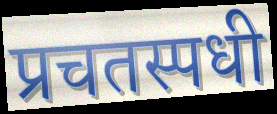
प्रचतस्पधी